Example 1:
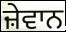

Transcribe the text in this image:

ਜ਼ੇਵਾਨ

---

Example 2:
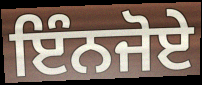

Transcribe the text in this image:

ਇੰਨਜੋਏ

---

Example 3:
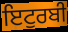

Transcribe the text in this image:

ਇਟੁਰਬੀ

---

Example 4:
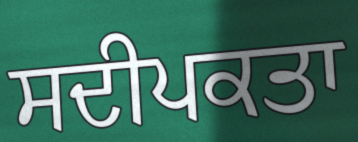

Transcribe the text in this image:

ਸਦੀਪਕਤਾ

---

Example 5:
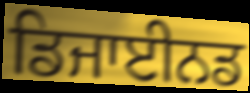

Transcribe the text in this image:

ਡਿਜਾਈਨਡ